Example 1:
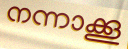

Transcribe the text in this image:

നന്നാക്കൂ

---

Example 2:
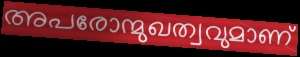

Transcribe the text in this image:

അപരോന്മുഖത്വവുമാണ്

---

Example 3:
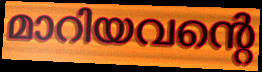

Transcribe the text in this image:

മാറിയവന്റെ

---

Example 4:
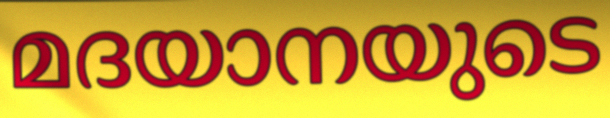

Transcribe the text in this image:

മദയാനയുടെ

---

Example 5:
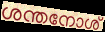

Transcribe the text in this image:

ശന്തനോശ്